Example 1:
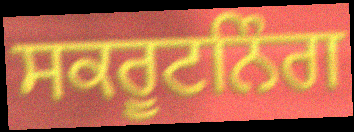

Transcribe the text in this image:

ਸਕਰੂਟਨਿੰਗ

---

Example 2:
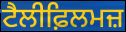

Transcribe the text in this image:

ਟੈਲੀਫ਼ਿਲਮਜ਼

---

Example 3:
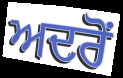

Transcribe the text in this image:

ਅਦਰੋਂ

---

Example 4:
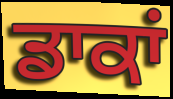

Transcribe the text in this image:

ਡਾਕਾਂ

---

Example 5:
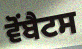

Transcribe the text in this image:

ਵੋਂਬੈਟਸ